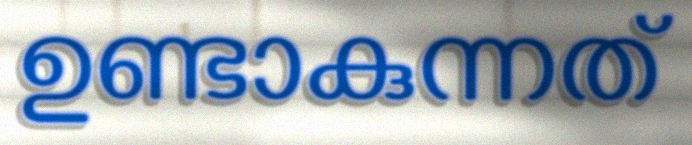
ഉണ്ടാകുന്നത്